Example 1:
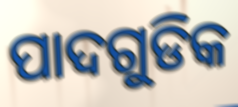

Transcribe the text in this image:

ପାଦଗୁଡିକ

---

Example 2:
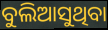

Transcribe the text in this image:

ବୁଲିଆସୁଥିବା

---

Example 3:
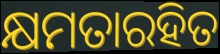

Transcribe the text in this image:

କ୍ଷମତାରହିତ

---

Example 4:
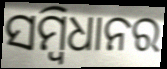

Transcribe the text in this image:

ସମ୍ବିଧାନର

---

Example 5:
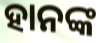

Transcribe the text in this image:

ହାନଙ୍କ